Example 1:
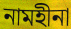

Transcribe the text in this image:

নামহীনা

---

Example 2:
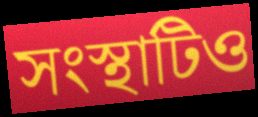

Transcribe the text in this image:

সংস্থাটিও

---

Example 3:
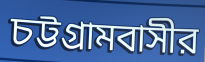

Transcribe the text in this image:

চট্টগ্রামবাসীর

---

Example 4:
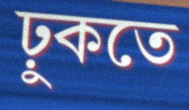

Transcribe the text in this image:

ঢ়ুকতে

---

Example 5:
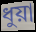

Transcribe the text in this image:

ধুয়া